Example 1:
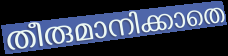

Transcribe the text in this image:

തീരുമാനിക്കാതെ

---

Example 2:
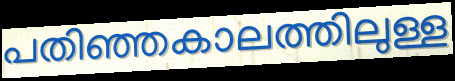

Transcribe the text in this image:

പതിഞ്ഞകാലത്തിലുള്ള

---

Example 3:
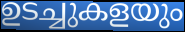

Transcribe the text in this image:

ഉടച്ചുകളയും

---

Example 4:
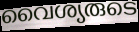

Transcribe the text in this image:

വൈശ്യരുടെ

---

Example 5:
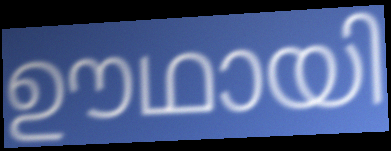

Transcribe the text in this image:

ഊഥായി